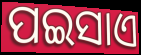
ପଇସାଏ